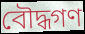
বৌদ্ধগণ